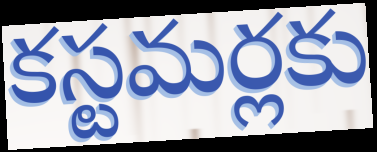
కస్టమర్లకు